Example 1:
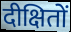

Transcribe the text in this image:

दीक्षितों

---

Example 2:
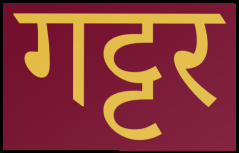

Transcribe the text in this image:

गट्टर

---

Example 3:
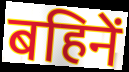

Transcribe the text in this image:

बहिनें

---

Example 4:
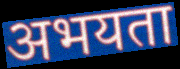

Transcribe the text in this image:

अभयता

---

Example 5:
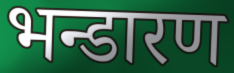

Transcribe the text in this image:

भन्डारण